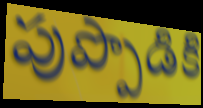
పుప్పొడికి